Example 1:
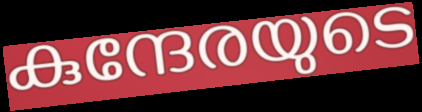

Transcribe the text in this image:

കുന്ദേരയുടെ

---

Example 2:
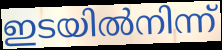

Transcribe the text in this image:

ഇടയിൽനിന്ന്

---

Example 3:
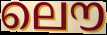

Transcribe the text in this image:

ലൌ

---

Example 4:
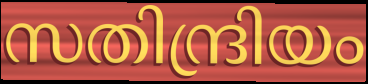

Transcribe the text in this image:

സതിന്ദ്രിയം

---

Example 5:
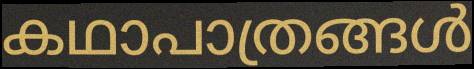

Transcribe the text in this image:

കഥാപാത്രങ്ങൾ